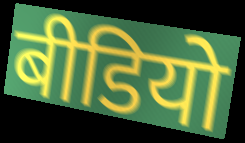
बीडियो